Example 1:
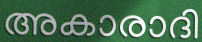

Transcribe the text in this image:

അകാരാദി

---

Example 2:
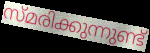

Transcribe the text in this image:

സ്മരിക്കുന്നുണ്ട്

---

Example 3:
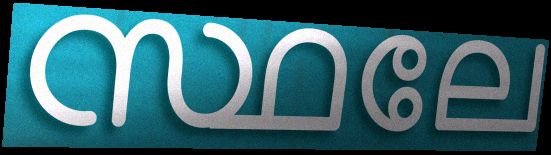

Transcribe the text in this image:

സ്ഥലേ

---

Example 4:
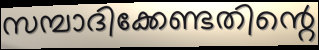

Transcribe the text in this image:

സമ്പാദിക്കേണ്ടതിന്റെ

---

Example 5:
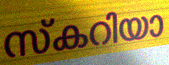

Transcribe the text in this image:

സ്‌കറിയാ